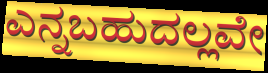
ಎನ್ನಬಹುದಲ್ಲವೇ